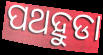
ପଥହୁଡା